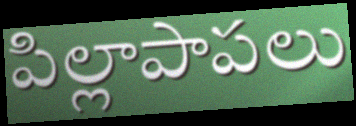
పిల్లాపాపలు